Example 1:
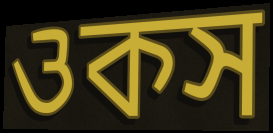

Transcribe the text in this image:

ওকস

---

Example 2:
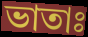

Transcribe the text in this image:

ভাতাঃ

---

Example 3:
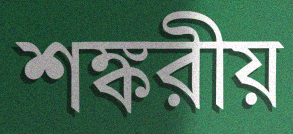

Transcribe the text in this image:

শঙ্করীয়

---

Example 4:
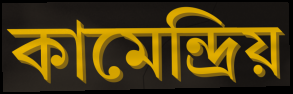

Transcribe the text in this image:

কামেন্দ্রিয়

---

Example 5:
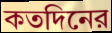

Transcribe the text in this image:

কতদিনের